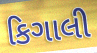
કિગાલી